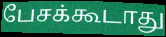
பேசக்கூடாது